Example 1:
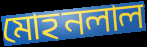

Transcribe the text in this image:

মোহনলাল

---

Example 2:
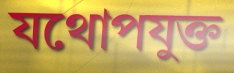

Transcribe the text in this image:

যথোপযুক্ত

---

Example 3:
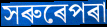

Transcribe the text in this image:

সৰুৰেপৰা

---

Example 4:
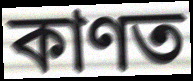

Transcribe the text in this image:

কাণত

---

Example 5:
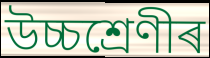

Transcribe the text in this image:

উচ্চশ্ৰেণীৰ